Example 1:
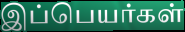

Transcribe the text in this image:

இப்பெயர்கள்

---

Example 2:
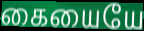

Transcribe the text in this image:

கையையே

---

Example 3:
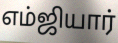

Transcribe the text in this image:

எம்ஜியார்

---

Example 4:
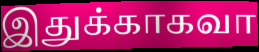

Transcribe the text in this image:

இதுக்காகவா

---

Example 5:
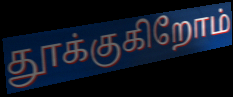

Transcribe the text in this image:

தூக்குகிறோம்